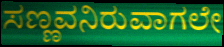
ಸಣ್ಣವನಿರುವಾಗಲೇ